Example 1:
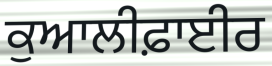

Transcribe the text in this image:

ਕੁਆਲੀਫ਼ਾਈਰ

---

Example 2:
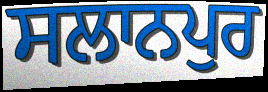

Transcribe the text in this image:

ਸਲਾਨਪੁਰ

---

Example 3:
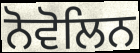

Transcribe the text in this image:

ਨੋਵੋਲਿਨ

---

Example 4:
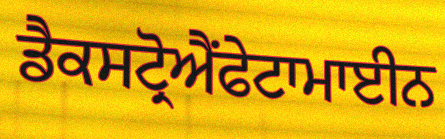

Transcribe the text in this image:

ਡੈਕਸਟ੍ਰੋਐਂਫੇਟਾਮਾਈਨ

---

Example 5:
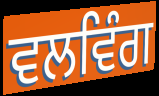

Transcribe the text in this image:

ਵਲਵਿੰਗ